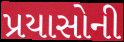
પ્રયાસોની